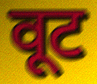
वूट